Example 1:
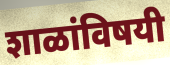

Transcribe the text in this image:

शाळांविषयी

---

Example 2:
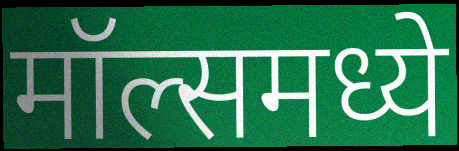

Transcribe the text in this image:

मॉल्समध्ये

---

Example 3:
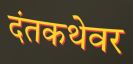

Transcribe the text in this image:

दंतकथेवर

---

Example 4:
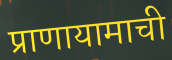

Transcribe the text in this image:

प्राणायामाची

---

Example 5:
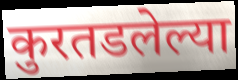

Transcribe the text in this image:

कुरतडलेल्या